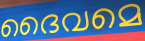
ദൈവമെ